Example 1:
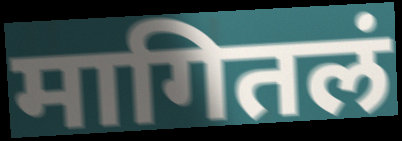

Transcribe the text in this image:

मागितलं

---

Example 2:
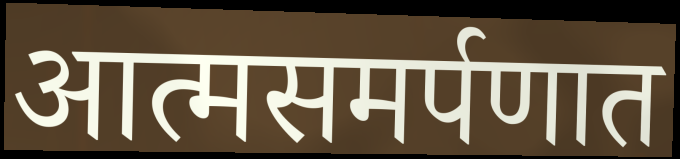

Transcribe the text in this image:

आत्मसमर्पणात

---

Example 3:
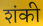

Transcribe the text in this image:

शंकी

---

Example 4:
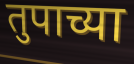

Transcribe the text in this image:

तुपाच्या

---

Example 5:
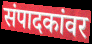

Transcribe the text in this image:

संपादकांवर